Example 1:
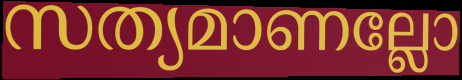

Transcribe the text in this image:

സത്യമാണല്ലോ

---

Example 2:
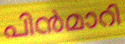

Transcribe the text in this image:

പിൻമാറി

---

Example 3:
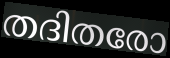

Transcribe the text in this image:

തദിതരോ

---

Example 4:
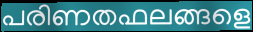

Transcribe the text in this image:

പരിണതഫലങ്ങളെ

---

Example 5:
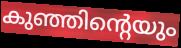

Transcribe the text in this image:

കുഞ്ഞിന്റെയും